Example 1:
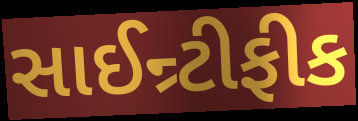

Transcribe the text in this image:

સાઈન્ર્ટીફીક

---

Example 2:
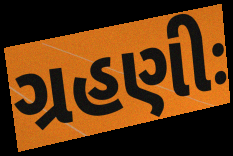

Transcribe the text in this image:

ગ્રહણીઃ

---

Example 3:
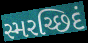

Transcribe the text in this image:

સ્મરચ્છિદં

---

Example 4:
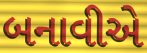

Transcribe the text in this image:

બનાવીએ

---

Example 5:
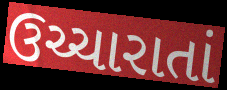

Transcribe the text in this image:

ઉચ્ચારાતાં